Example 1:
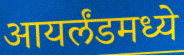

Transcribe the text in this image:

आयर्लंडमध्ये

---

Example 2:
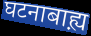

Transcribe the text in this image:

घटनाबाह्य़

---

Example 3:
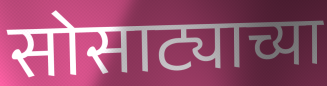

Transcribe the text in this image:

सोसाट्याच्या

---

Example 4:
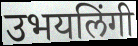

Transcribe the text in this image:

उभयलिंगी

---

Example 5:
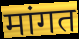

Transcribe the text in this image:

मांगत